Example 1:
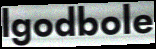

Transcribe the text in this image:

lgodbole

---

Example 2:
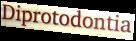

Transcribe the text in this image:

Diprotodontia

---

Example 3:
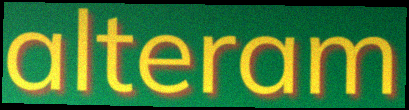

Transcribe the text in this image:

alteram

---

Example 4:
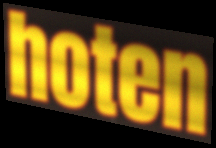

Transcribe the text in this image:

hoten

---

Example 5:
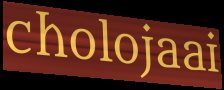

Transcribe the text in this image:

cholojaai